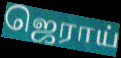
ஜெராய்